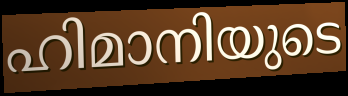
ഹിമാനിയുടെ